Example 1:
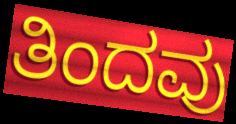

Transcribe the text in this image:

ತಿಂದವು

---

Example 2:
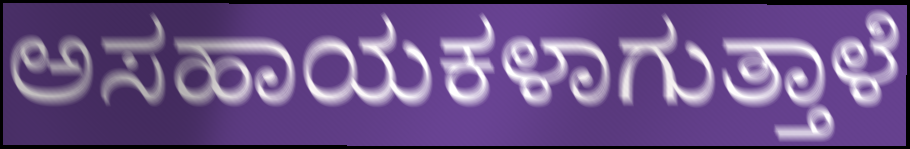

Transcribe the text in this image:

ಅಸಹಾಯಕಳಾಗುತ್ತಾಳೆ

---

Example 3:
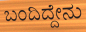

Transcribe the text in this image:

ಬಂದಿದ್ದೇನು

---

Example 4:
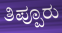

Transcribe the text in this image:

ತಿಪ್ಪೂರು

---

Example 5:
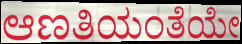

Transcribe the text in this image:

ಆಣತಿಯಂತೆಯೇ